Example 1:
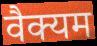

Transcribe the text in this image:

वैक्यम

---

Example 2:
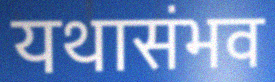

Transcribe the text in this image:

यथासंभव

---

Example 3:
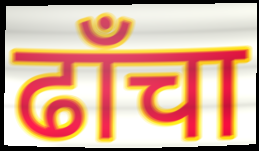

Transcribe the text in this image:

ढाँचा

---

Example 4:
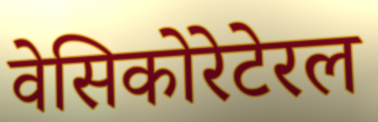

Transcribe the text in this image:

वेसिकोरेटेरल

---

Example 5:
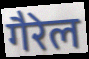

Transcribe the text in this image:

गैरेल